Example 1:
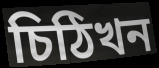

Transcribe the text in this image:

চিঠিখন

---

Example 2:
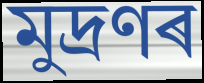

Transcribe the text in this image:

মুদ্ৰণৰ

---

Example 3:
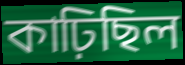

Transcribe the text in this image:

কাঢ়িছিল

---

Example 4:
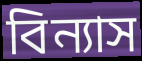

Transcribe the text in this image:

বিন্যাস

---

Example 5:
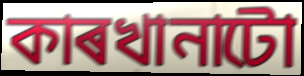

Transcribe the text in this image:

কাৰখানাটো